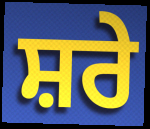
ਸ਼ਰੇ